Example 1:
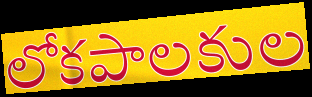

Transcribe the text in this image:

లోకపాలకుల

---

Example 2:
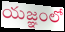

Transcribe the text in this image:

యజ్ఞంలో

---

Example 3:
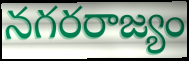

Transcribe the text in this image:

నగరరాజ్యం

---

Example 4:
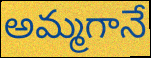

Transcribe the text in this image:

అమ్మగానే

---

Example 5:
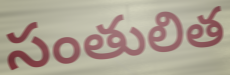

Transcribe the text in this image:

సంతులిత